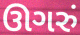
ઊગરું